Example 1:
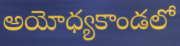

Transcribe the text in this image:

అయోధ్యకాండలో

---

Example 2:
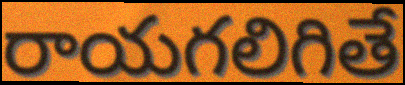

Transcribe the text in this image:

రాయగలిగితే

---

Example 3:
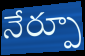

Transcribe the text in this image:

నేర్పూ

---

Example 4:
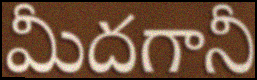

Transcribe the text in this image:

మీదగానీ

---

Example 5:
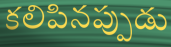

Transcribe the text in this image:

కలిపినప్పుడు